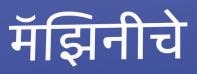
मॅझिनीचे